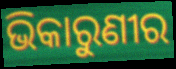
ଭିକାରୁଣୀର